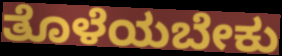
ತೊಳೆಯಬೇಕು